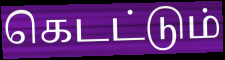
கெடட்டும்